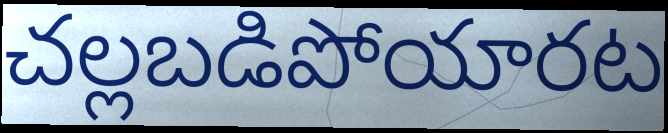
చల్లబడిపోయారట